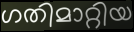
ഗതിമാറ്റിയ